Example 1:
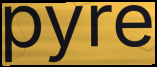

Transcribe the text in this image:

pyre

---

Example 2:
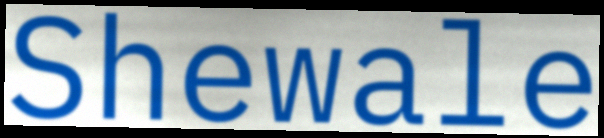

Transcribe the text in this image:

Shewale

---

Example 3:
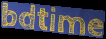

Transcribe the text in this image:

bdtime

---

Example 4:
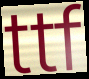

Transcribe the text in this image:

ttf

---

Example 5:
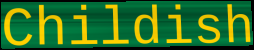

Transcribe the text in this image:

Childish